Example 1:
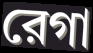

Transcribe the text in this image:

রেগা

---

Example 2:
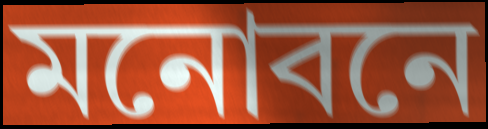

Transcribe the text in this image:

মনোবনে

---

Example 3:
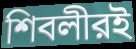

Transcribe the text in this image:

শিবলীরই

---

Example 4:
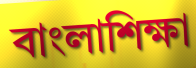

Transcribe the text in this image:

বাংলাশিক্ষা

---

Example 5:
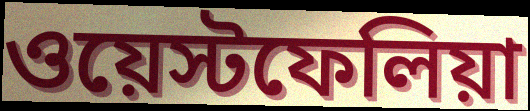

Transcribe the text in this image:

ওয়েস্টফেলিয়া